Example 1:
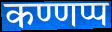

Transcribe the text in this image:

कण्णप्प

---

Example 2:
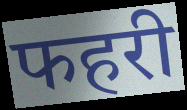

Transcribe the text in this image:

फहरी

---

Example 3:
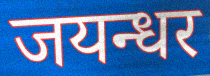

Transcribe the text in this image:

जयन्धर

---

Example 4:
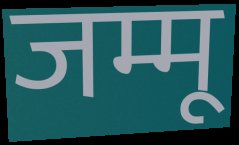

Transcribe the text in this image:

जम्‍मू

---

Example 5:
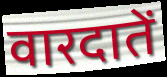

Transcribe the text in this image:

वारदातें